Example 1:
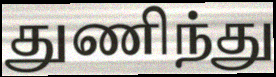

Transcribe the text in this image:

துணிந்து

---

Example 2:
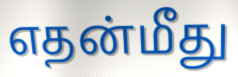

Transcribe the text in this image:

எதன்மீது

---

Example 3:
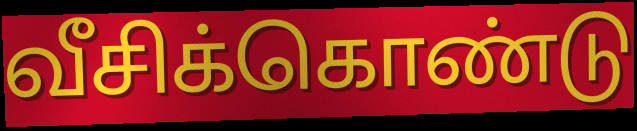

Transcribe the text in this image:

வீசிக்கொண்டு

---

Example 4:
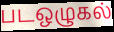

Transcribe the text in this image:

படஒழுகல்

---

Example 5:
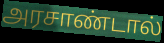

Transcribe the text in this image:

அரசாண்டால்